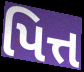
પિત્ત